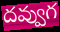
దవ్వుగ